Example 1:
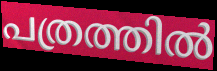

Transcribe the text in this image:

പത്രത്തിൽ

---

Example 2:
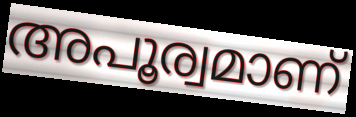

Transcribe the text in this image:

അപൂര്വമാണ്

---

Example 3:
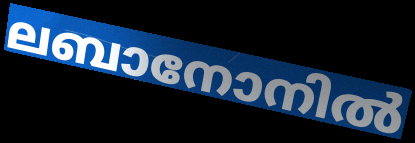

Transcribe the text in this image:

ലബാനോനിൽ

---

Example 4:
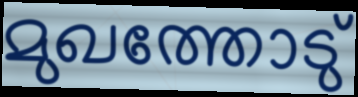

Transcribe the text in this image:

മുഖത്തോടു്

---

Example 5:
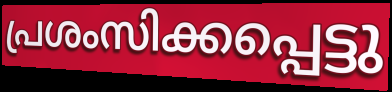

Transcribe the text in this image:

പ്രശംസിക്കപ്പെട്ടു